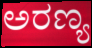
ಅರಣ್ಯ